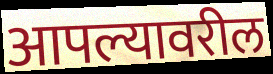
आपल्यावरील